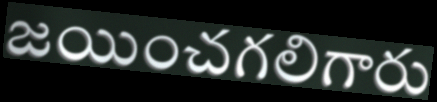
జయించగలిగారు